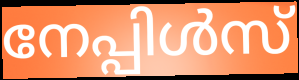
നേപ്പിൾസ്